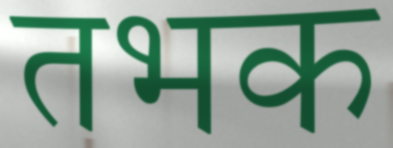
तभक